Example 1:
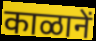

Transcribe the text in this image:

काळानें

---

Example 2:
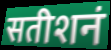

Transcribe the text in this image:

सतीशनं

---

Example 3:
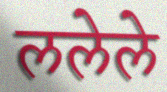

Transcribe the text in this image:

ललेले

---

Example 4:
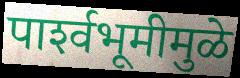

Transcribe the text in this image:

पार्श्‍वभूमीमुळे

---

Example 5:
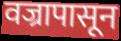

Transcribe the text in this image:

वज्रापासून